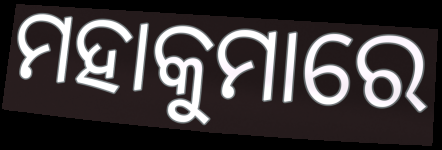
ମହାକୁମାରେ